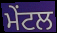
ਮੇਂਟਲ